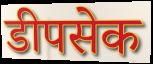
डीपसेक